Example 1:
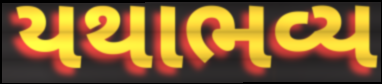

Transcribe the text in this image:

યથાભવ્ય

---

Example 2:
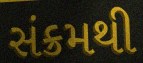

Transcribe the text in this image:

સંક્રમથી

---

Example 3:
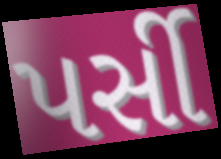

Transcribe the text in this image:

પર્સી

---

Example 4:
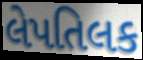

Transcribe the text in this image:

લેપતિલક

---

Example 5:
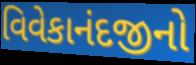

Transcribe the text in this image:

વિવેકાનંદજીનો